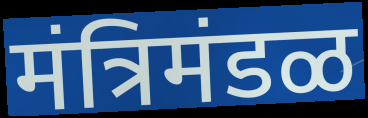
मंत्रिमंडळ